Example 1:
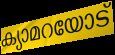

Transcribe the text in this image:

ക്യാമറയോട്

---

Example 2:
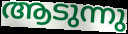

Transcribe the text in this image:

ആടുന്നു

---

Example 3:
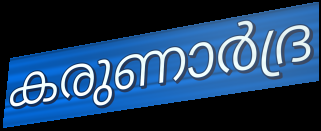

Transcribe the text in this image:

കരുണാർദ്ര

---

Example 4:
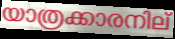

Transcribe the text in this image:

യാത്രക്കാരനില്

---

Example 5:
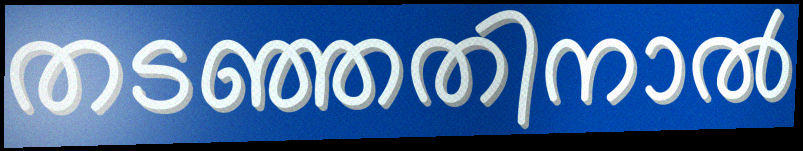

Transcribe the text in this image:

തടഞ്ഞതിനാൽ